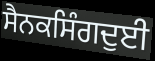
ਸੈਨਕਸਿੰਗਦੁਈ